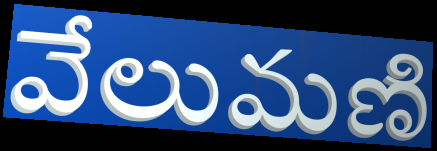
వేలుమణి